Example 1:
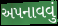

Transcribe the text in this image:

અપનાવવું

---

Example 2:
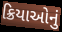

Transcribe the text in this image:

ક્રિયાઓનું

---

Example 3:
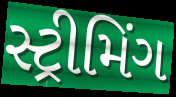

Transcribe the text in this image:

સ્ટ્રીમિંગ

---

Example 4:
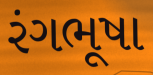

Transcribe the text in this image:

રંગભૂષા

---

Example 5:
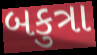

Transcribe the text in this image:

બકુત્રા